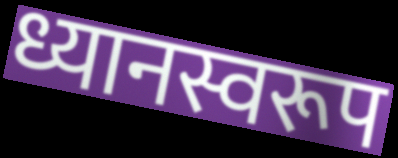
ध्यानस्वरूप